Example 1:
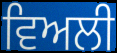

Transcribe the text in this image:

ਵਿਅਲੀ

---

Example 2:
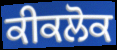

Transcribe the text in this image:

ਕੀਕਲੋਕ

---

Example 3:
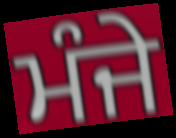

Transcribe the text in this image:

ਮੰਜੇ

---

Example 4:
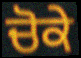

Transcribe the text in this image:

ਚੋਕੇ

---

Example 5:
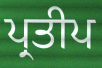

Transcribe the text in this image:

ਪ੍ਰਤੀਪ